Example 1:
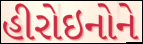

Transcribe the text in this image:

હીરોઇનોને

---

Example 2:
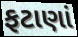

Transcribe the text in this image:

ફટાણાં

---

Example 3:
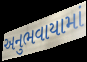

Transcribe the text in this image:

અનુભવાયામાં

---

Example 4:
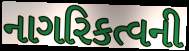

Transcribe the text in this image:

નાગરિકત્વની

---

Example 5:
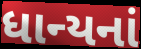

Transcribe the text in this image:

ધાન્યનાં